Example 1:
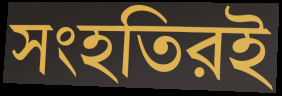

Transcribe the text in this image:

সংহতিরই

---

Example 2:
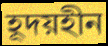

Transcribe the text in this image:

হূদয়হীন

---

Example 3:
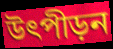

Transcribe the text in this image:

উৎপীড়ন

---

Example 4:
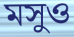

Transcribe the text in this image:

মসুও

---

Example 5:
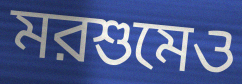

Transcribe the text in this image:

মরশুমেও